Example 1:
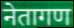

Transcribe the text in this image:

नेतागण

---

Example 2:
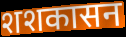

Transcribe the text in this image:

शशकासन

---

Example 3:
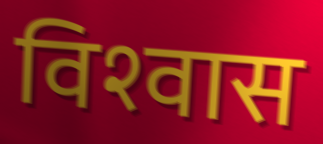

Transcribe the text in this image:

विश्वास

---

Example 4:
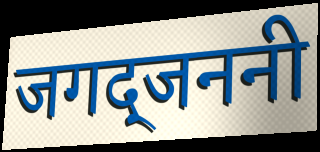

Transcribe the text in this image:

जगद्जननी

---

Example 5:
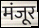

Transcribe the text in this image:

मंजूर